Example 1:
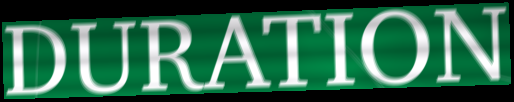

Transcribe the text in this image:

DURATION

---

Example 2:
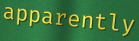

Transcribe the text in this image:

apparently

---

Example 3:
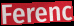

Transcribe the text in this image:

Ferenc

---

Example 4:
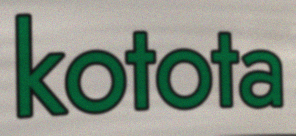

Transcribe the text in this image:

kotota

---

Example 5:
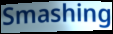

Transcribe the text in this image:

Smashing